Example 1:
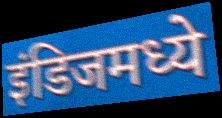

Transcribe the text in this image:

इंडिजमध्ये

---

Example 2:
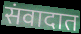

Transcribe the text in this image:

संवादात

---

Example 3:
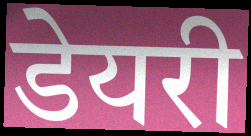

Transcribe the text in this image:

डेयरी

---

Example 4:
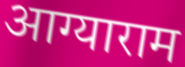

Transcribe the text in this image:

आग्याराम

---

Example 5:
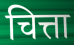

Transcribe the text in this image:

चित्ता